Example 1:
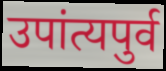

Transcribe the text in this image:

उपांत्यपुर्व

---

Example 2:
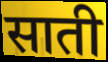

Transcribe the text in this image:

साती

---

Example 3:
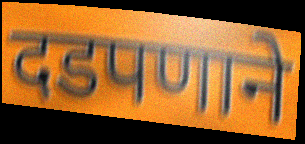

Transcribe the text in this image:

दडपणाने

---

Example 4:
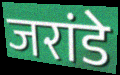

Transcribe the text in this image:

जरांडे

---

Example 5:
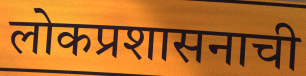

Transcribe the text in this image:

लोकप्रशासनाची